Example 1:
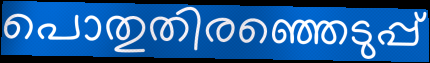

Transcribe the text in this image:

പൊതുതിരഞ്ഞെടുപ്പ്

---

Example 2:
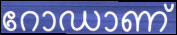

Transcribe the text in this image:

റോഡാണ്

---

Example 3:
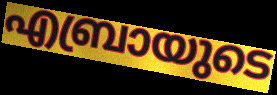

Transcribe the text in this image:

എബ്രായുടെ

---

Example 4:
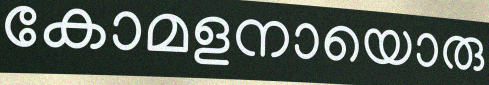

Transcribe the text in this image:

കോമളനായൊരു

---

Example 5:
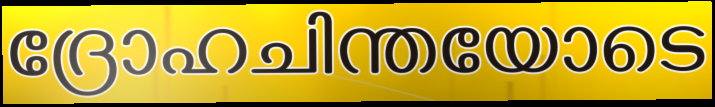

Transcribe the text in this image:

ദ്രോഹചിന്തയോടെ